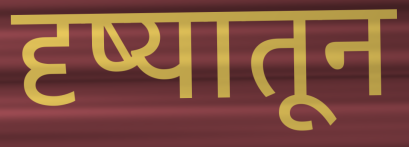
दृष्यातून